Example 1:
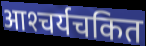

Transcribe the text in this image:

आश्चर्यचकित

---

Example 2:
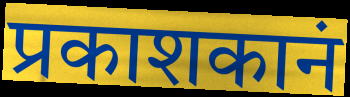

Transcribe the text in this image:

प्रकाशकानं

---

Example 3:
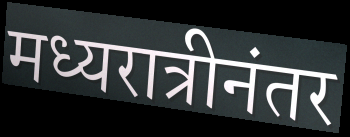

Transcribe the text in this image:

मध्यरात्रीनंतर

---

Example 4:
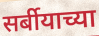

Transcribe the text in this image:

सर्बीयाच्या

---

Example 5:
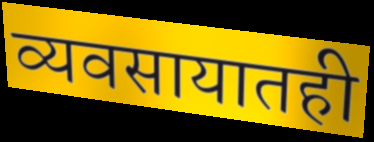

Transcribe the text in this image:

व्यवसायातही